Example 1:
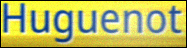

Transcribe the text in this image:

Huguenot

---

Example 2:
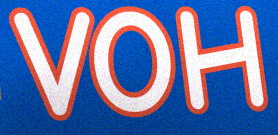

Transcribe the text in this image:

VOH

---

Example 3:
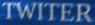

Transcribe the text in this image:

TWITER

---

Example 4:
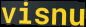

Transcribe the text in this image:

visnu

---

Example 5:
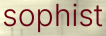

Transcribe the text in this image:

sophist